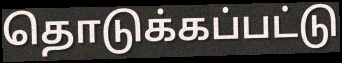
தொடுக்கப்பட்டு